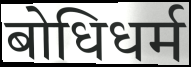
बोधिधर्म